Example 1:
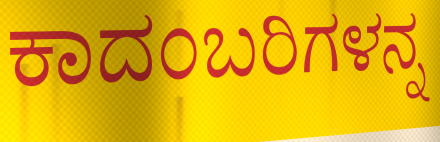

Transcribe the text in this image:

ಕಾದಂಬರಿಗಳನ್ನ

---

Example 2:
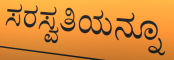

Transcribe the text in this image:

ಸರಸ್ವತಿಯನ್ನೂ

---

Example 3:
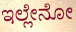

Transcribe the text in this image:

ಇಲ್ಲೇನೋ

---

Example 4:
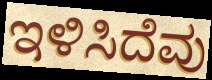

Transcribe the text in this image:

ಇಳಿಸಿದೆವು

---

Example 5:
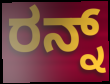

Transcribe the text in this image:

ರನ್ನ್